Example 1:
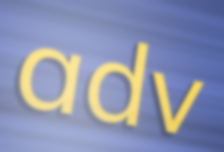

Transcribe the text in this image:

adv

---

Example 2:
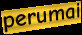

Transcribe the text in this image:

perumai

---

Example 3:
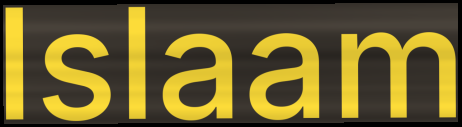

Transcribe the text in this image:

Islaam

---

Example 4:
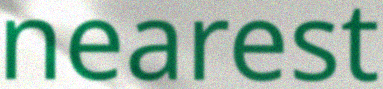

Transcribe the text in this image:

nearest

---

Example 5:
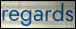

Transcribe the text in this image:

regards